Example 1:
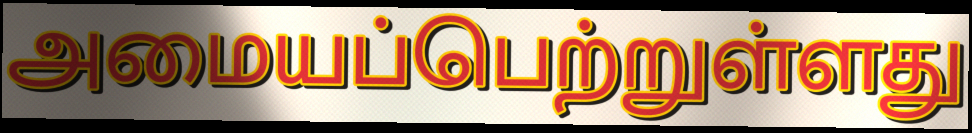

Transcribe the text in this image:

அமையப்பெற்றுள்ளது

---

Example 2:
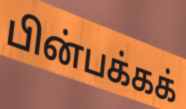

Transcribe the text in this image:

பின்பக்கக்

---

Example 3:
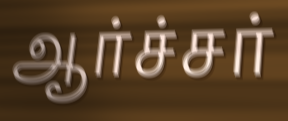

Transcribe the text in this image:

ஆர்ச்சர்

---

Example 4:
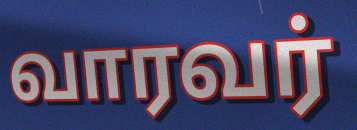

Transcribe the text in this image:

வாரவர்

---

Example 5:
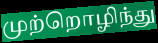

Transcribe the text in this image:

முற்றொழிந்து